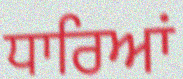
ਧਾਰਿਆਂ